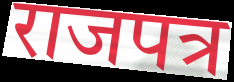
राजपत्र